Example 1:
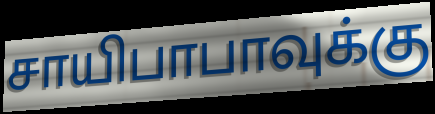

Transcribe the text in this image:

சாயிபாபாவுக்கு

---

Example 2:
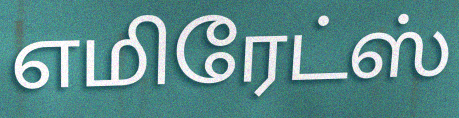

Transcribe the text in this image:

எமிரேட்ஸ்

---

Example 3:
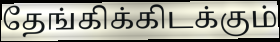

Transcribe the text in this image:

தேங்கிக்கிடக்கும்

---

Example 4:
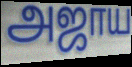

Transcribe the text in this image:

அஜாய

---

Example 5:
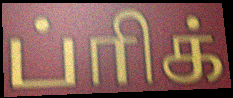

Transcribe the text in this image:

ப்ரிக்